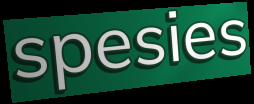
spesies